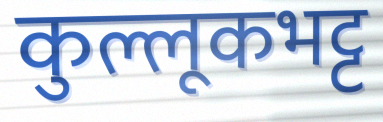
कुल्लूकभट्ट